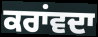
ਕਰਾਂਵਦਾ